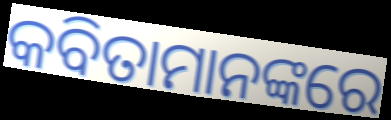
କବିତାମାନଙ୍କରେ